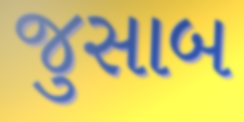
જુસાબ